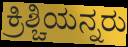
ಕ್ರಿಶ್ಚಿಯನ್ನರು